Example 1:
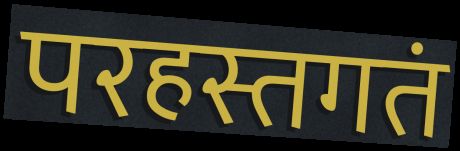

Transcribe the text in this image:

परहस्तगतं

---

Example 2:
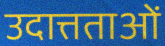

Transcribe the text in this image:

उदात्तताओं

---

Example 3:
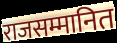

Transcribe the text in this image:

राजसम्मानित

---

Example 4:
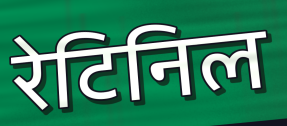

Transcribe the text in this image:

रेटिनिल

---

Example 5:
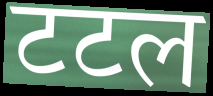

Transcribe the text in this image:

टटल